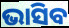
ଭାସିବ